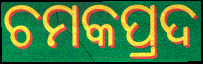
ଚମକପ୍ରଦ